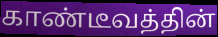
காண்டீவத்தின்